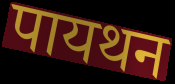
पायथन